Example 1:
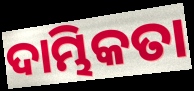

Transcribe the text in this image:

ଦାମ୍ଭିକତା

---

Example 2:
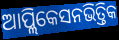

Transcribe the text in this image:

ଆପ୍ଲିକେସନଭିତ୍ତିକ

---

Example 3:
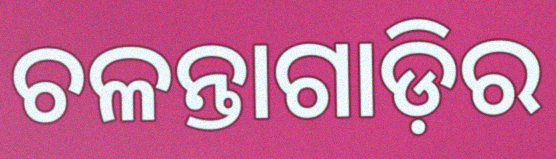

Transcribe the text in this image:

ଚଳନ୍ତାଗାଡ଼ିର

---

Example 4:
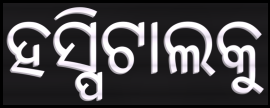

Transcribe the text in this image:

ହସ୍ପିଟାଲକୁ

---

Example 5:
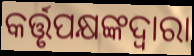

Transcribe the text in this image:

କର୍ତ୍ତୃପକ୍ଷଙ୍କଦ୍ଵାରା